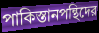
পাকিস্তানপন্থিদের